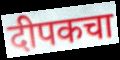
दीपकचा